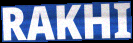
RAKHI